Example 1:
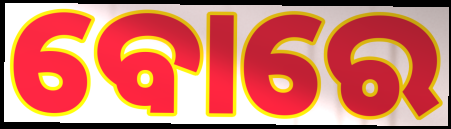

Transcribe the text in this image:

ବୋରେ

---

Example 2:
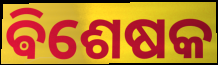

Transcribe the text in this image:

ଵିଶେଷକ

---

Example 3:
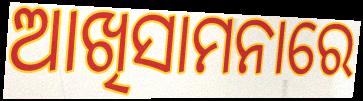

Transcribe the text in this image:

ଆଖିସାମନାରେ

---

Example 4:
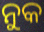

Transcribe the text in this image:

ନୁକ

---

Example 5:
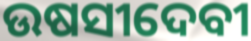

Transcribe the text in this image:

ଉଷସୀଦେବୀ